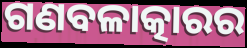
ଗଣବଳାତ୍କାରର